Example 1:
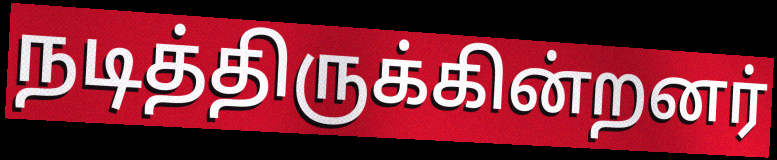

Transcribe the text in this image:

நடித்திருக்கின்றனர்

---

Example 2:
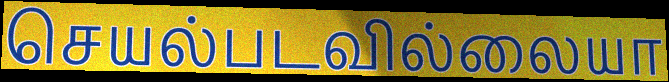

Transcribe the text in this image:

செயல்படவில்லையா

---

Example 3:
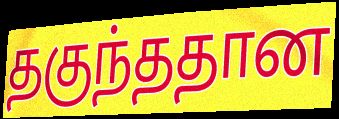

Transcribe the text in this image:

தகுந்ததான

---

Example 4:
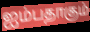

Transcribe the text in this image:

ஐம்பதாகும்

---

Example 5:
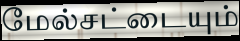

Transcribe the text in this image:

மேல்சட்டையும்